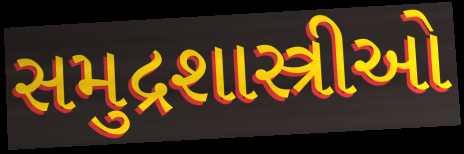
સમુદ્રશાસ્ત્રીઓ